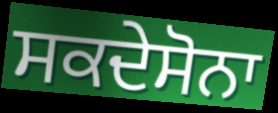
ਸਕਦੇਸੋਨਾ